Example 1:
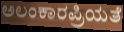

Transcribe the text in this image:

ಅಲಂಕಾರಪ್ರಿಯತೆ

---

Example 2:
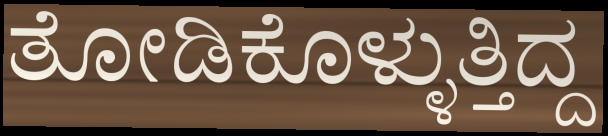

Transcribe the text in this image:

ತೋಡಿಕೊಳ್ಳುತ್ತಿದ್ದ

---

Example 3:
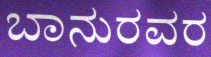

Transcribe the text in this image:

ಬಾನುರವರ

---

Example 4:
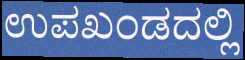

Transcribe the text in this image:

ಉಪಖಂಡದಲ್ಲಿ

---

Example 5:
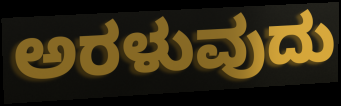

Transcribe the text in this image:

ಅರಳುವುದು